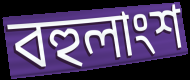
বহুলাংশ